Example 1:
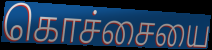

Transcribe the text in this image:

கொச்சையை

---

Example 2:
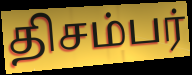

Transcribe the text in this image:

திசம்பர்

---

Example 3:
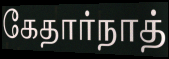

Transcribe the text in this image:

கேதார்நாத்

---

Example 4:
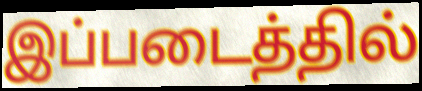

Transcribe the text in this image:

இப்படைத்தில்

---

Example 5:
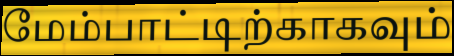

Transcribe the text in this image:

மேம்பாட்டிற்காகவும்